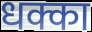
धक्का